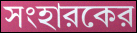
সংহারকের